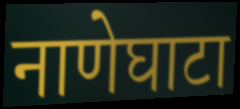
नाणेघाटा